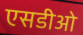
एसडीओ